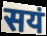
सयं